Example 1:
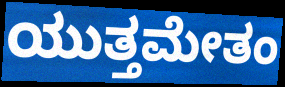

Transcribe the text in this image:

ಯುತ್ತಮೇತಂ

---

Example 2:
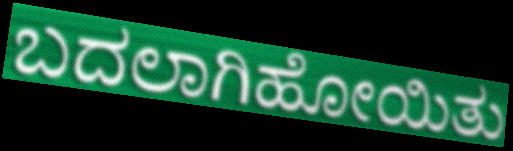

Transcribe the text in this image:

ಬದಲಾಗಿಹೋಯಿತು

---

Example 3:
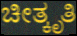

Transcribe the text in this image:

ಚೀತ್ಕೃತಿ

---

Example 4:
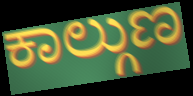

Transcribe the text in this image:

ಕಾಲ್ಗುಣ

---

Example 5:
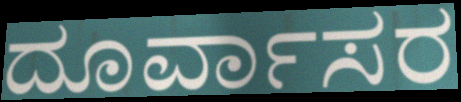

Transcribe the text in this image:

ದೂರ್ವಾಸರ